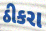
ઠીકરા